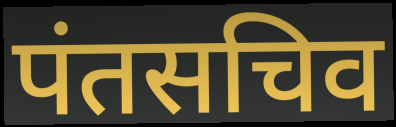
पंतसचिव